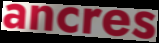
ancres